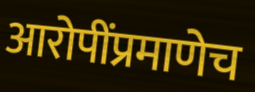
आरोपींप्रमाणेच